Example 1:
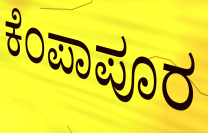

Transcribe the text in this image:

ಕೆಂಪಾಪೂರ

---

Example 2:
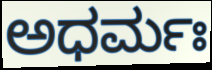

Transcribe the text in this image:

ಅಧರ್ಮಃ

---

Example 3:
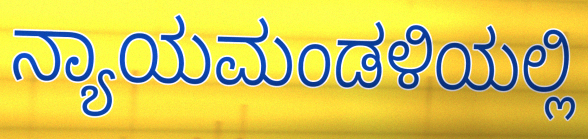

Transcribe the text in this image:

ನ್ಯಾಯಮಂಡಳಿಯಲ್ಲಿ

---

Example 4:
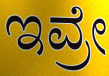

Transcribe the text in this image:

ಇವ್ರೇ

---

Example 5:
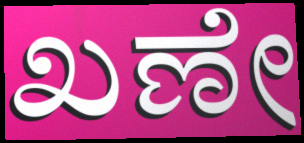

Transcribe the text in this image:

ಖಣೇ